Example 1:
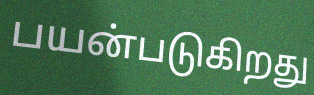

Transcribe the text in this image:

பயன்படுகிறது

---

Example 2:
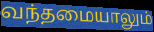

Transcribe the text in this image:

வந்தமையாலும்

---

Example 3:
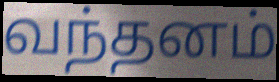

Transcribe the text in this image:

வந்தனம்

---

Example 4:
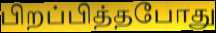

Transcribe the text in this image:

பிறப்பித்தபோது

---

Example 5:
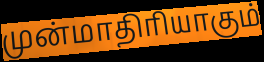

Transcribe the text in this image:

முன்மாதிரியாகும்